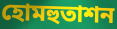
হোমহুতাশন